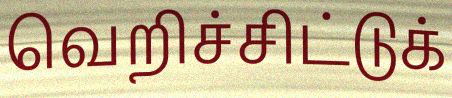
வெறிச்சிட்டுக்